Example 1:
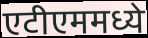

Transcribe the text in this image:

एटीएममध्ये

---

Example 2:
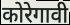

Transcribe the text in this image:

कोरेगावी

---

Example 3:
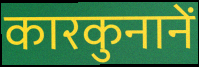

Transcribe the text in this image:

कारकुनानें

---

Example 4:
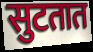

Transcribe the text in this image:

सुटतात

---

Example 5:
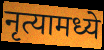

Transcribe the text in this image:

नृत्यामध्ये